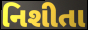
નિશીતા